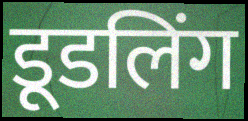
डूडलिंग